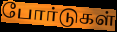
போர்டுகள்